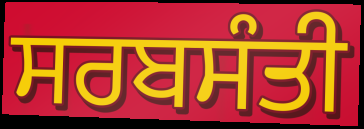
ਸਰਬਸੰਤੀ